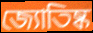
জ্যোতিষ্ক